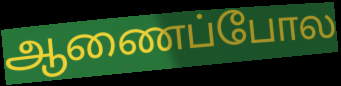
ஆணைப்போல